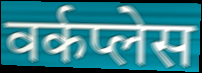
वर्कप्लेस